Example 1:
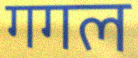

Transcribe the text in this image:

गगल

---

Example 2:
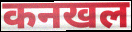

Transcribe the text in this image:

कनखल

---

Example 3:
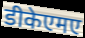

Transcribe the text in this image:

डीकेएमए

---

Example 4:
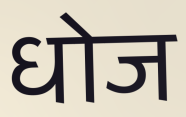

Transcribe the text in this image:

धोज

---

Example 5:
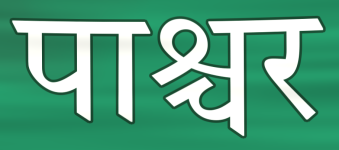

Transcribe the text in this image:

पाश्चर